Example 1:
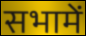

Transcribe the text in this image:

सभामें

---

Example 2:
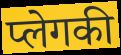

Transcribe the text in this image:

प्लेगकी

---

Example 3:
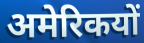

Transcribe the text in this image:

अमेरिकयों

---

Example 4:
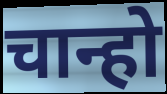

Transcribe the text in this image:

चान्हो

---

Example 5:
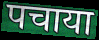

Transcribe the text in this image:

पचाया